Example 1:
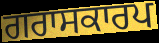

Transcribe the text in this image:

ਗਰਾਸਕਾਰਪ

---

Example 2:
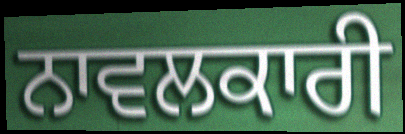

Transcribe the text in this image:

ਨਾਵਲਕਾਰੀ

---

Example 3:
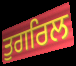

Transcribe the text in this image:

ਤੁਗਰਿਲ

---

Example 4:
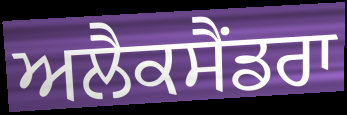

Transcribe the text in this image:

ਅਲੈਕਸੈਂਡਰਾ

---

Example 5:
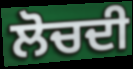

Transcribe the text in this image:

ਲੋਚਦੀ